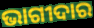
ଭାଗୀଦାର